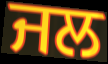
ਜਲ